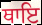
ਥਾਇ